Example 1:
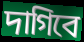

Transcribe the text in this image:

দাগিবে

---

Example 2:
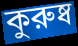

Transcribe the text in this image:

কুরুষ্ব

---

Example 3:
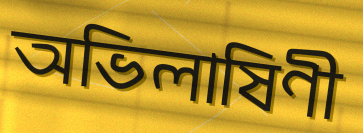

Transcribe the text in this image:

অভিলাষিণী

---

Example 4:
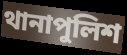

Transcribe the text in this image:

থানাপুলিশ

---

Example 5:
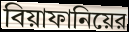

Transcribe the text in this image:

বিয়াফানিয়ের